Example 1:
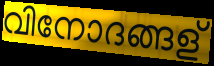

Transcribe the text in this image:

വിനോദങ്ങള്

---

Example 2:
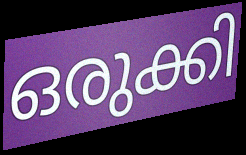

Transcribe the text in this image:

ഒരുക്കി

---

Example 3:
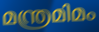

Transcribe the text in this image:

മന്ത്രമിമം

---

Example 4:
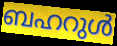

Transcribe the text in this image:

ബഹറുൾ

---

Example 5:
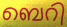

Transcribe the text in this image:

ബെറി